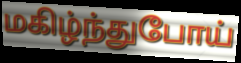
மகிழ்ந்துபோய்